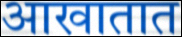
आखातात